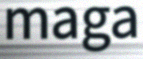
maga